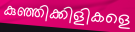
കുഞ്ഞിക്കിളികളെ